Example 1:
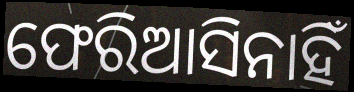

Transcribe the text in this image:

ଫେରିଆସିନାହିଁ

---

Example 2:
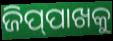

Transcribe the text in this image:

ଜିପ୍‌ପାଖକୁ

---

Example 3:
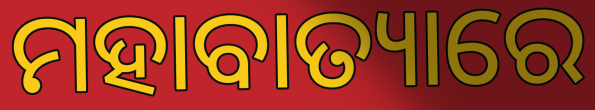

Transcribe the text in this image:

ମହାବାତ୍ୟାରେ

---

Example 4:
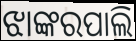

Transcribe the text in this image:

ଝାଙ୍କରପାଲି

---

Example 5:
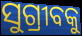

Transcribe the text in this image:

ସୁଗ୍ରୀବକୁ